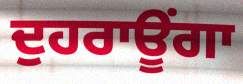
ਦੁਹਰਾਊਂਗਾ